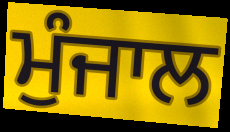
ਮੁੰਜਾਲ